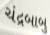
ચંદ્રબાબુ